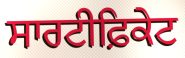
ਸਾਰਟੀਫ਼ਿਕੇਟ